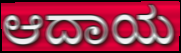
ಆದಾಯ